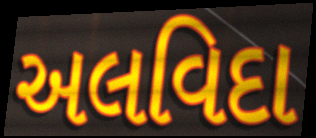
અલવિદા